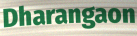
Dharangaon